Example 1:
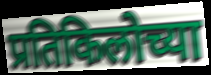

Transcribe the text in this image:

प्रतिकिलोच्या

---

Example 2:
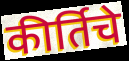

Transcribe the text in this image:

कीर्तिचे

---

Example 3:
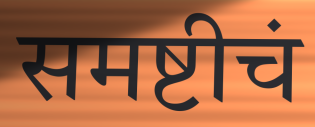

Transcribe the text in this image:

समष्टीचं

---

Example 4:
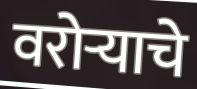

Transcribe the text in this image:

वरोऱ्याचे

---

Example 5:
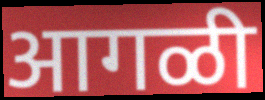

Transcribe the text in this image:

आगळी